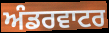
ਅੰਡਰਵਾਟਰ